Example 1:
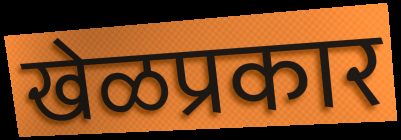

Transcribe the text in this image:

खेळप्रकार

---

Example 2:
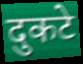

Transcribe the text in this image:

दुकटे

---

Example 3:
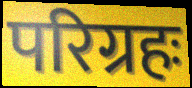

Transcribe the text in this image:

परिग्रहः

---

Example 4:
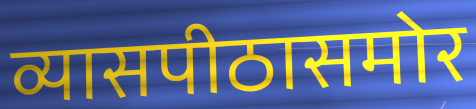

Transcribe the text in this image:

व्यासपीठासमोर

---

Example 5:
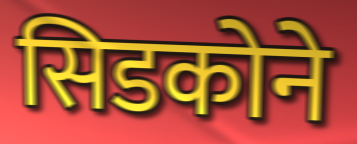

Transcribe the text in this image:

सिडकोने